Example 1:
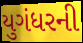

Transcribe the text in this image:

યુગંધરની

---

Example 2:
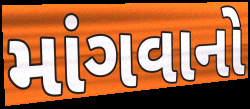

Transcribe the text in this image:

માંગવાનો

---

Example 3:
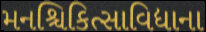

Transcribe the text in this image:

મનશ્ચિકિત્સાવિદ્યાના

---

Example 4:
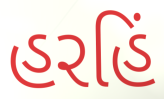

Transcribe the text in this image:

હરહિં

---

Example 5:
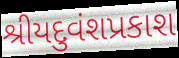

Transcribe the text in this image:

શ્રીયદુવંશપ્રકાશ